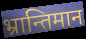
भ्रान्तिमान